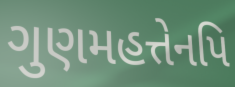
ગુણમહત્તેનપિ